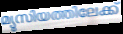
മ്യുസിയത്തിലേക്ക്